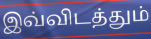
இவ்விடத்தும்